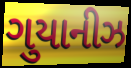
ગુયાનીઝ